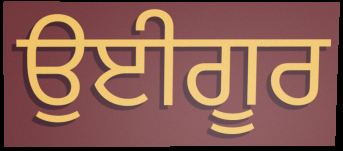
ਉਈਗੂਰ